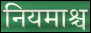
नियमाश्च